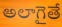
అలాగైతే